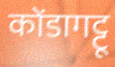
कोंडागट्टू